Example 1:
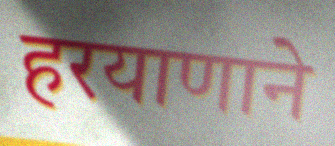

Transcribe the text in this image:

हरयाणाने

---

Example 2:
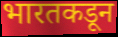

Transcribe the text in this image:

भारतकडून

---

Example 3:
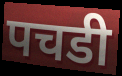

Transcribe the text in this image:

पचडी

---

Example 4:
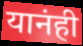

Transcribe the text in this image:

यानंही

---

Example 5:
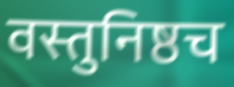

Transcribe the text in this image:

वस्तुनिष्ठच